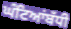
ਘੰਟਿਆਂਬੱਧੀ